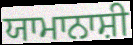
ਯਾਮਾਨਾਸ਼ੀ